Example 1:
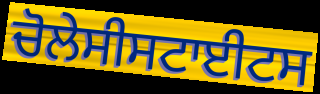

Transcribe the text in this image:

ਚੋਲੇਸੀਸਟਾਈਟਸ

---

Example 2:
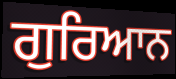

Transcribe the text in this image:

ਗੁਰਿਆਨ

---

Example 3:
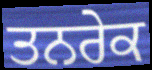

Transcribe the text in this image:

ਤਨਰੇਕ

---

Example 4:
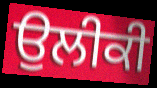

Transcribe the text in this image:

ਉਲੀਕੀ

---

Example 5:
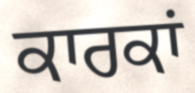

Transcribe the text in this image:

ਕਾਰਕਾਂ